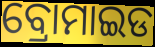
ବ୍ରୋମାଇଡ